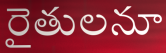
రైతులనూ